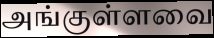
அங்குள்ளவை